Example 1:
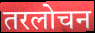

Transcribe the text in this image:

तरलोचन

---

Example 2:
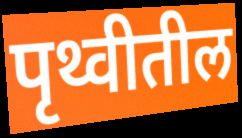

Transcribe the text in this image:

पृथ्वीतील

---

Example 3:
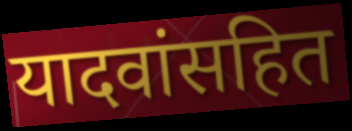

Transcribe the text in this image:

यादवांसहित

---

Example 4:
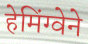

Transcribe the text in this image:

हेमिंग्वेने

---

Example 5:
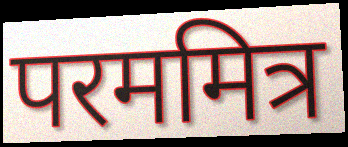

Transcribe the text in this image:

परममित्र